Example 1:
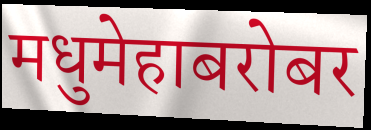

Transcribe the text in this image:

मधुमेहाबरोबर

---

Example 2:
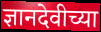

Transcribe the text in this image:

ज्ञानदेवीच्या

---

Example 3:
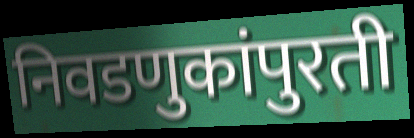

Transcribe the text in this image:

निवडणुकांपुरती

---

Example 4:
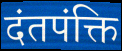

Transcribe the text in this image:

दंतपंक्ति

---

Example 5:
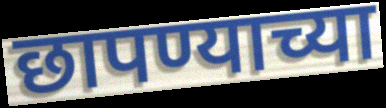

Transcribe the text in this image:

छापण्याच्या